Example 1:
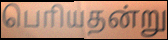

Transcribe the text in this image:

பெரியதன்று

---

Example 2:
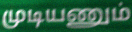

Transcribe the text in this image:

முடியணும்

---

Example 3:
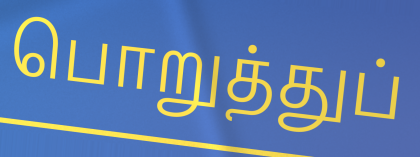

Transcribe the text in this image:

பொறுத்துப்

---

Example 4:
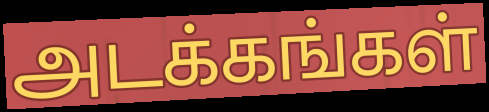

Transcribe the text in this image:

அடக்கங்கள்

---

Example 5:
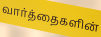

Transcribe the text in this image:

வார்த்தைகளின்